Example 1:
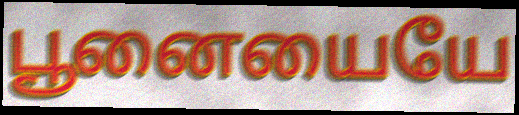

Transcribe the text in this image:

பூனையையே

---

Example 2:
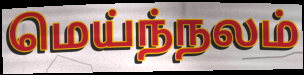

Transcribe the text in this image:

மெய்ந்நலம்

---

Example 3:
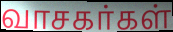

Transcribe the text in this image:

வாசகர்கள்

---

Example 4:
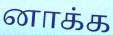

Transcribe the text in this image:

னாக்க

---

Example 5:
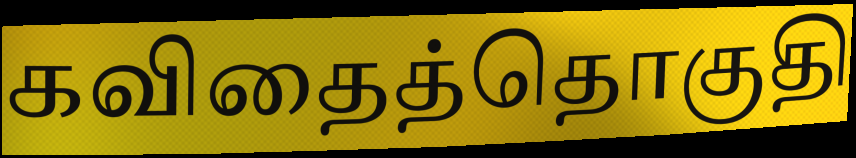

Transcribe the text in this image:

கவிதைத்தொகுதி